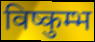
विष्कुम्भ